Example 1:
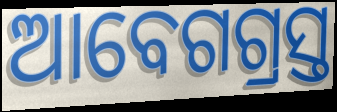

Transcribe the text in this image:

ଆବେଗଗ୍ରସ୍ତ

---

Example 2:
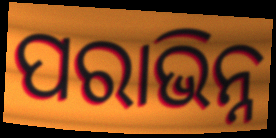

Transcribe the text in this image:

ପରାଭିନ୍ନ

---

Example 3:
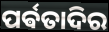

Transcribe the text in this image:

ପର୍ଵତାଦିର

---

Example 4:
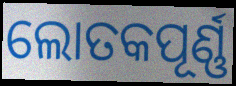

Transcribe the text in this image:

ଲୋତକପୂର୍ଣ୍ଣ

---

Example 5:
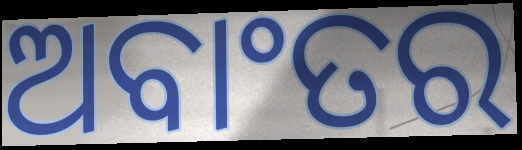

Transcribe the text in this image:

ଅବାଂତର